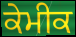
ਕੇਮੀਕ